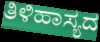
ತಿಳಿಹಾಸ್ಯದ